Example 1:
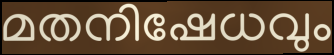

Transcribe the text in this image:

മതനിഷേധവും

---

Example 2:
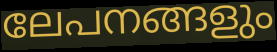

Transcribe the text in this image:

ലേപനങ്ങളും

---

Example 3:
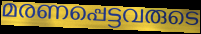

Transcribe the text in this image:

മരണപ്പെട്ടവരുടെ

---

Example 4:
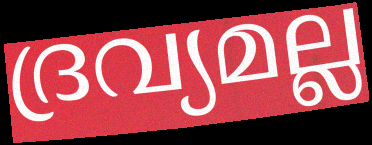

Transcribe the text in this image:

ദ്രവ്യമല്ല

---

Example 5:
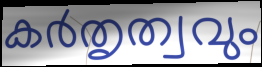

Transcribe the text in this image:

കർതൃത്വവും